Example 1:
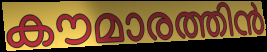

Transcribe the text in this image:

കൗമാരത്തിൻ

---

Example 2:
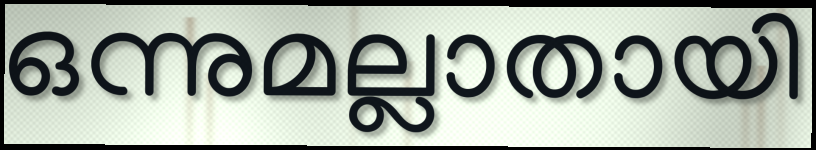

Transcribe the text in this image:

ഒന്നുമല്ലാതായി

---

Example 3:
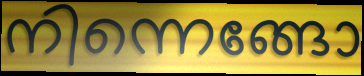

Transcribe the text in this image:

നിന്നെങ്ങോ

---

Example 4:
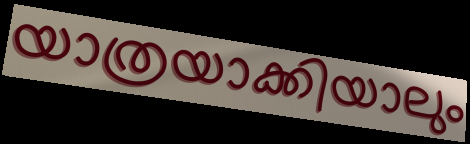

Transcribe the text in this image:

യാത്രയാക്കിയാലും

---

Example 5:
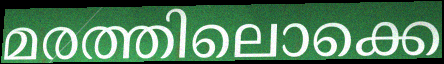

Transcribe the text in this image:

മരത്തിലൊക്കെ